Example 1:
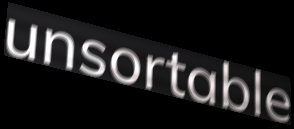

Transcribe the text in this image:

unsortable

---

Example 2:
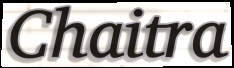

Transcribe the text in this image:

Chaitra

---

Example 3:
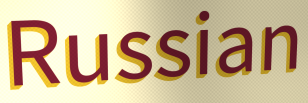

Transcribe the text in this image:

Russian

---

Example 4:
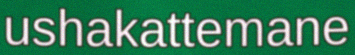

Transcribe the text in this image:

ushakattemane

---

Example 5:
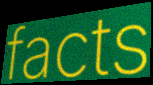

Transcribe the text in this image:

facts